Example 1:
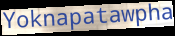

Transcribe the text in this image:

Yoknapatawpha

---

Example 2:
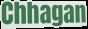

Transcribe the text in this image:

Chhagan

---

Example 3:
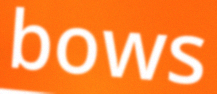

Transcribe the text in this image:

bows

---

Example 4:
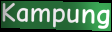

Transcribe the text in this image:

Kampung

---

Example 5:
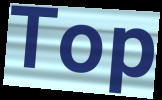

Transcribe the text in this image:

Top